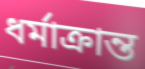
ধর্মাক্রান্ত